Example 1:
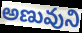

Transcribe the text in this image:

అణువుని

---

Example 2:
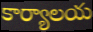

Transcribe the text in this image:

కార్యాలయ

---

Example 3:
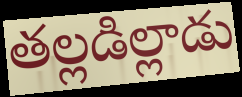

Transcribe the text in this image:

తల్లడిల్లాడు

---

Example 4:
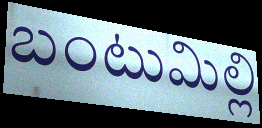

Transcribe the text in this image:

బంటుమిల్లి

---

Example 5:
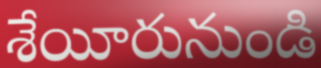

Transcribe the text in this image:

శేయీరునుండి